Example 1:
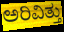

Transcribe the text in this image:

ಅರಿವಿತ್ತು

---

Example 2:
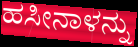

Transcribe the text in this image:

ಹಸೀನಾಳನ್ನು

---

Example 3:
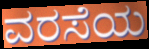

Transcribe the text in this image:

ವರಸೆಯ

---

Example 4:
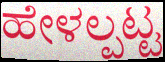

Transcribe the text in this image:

ಹೇಳಲ್ಪಟ್ಟ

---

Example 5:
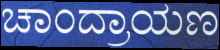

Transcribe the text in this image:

ಚಾಂದ್ರಾಯಣ